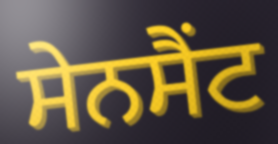
ਸੇਨਸੈਂਟ